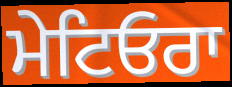
ਮੇਟਿਓਰਾ